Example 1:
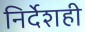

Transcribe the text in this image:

निर्देशही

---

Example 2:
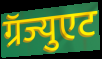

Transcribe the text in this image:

ग्रॅज्युएट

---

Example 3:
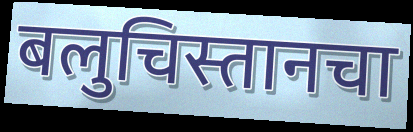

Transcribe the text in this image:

बलुचिस्तानचा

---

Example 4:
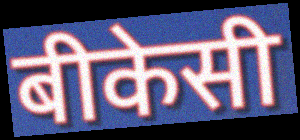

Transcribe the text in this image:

बीकेसी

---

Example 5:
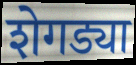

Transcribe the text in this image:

शेगड्या